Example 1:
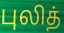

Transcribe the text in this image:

புலித்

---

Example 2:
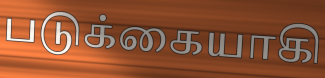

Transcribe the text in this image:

படுக்கையாகி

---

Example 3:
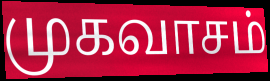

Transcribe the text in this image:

முகவாசம்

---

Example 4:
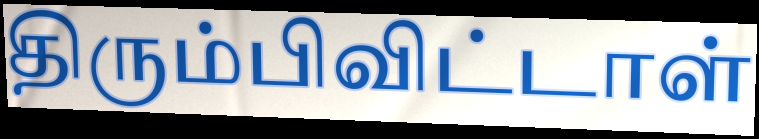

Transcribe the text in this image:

திரும்பிவிட்டாள்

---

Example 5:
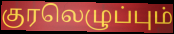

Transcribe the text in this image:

குரலெழுப்பும்